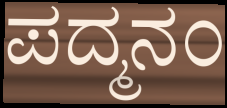
ಪದ್ಮನಂ